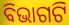
ବିଭାଗଟି